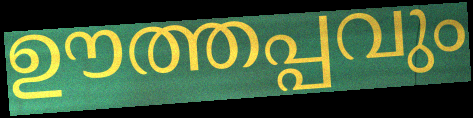
ഊത്തപ്പവും